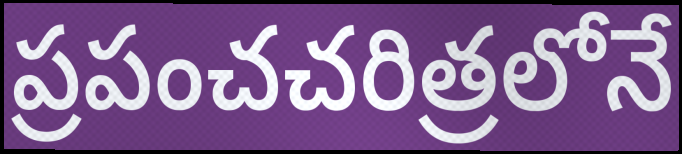
ప్రపంచచరిత్రలోనే